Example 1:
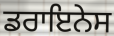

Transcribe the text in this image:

ਡਰਾਇਨੇਸ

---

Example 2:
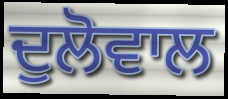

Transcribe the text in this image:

ਦੁਲੋਵਾਲ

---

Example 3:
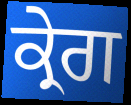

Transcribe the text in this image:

ਕ੍ਰੇਗ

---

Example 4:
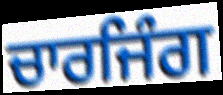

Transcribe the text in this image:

ਚਾਰਜਿੰਗ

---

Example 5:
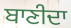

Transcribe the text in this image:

ਬਾਣੀਦਾ